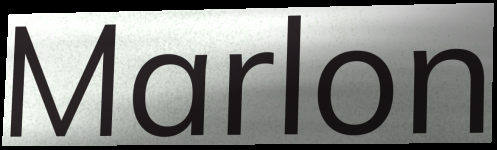
Marlon